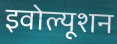
इवोल्यूशन